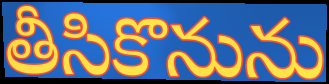
తీసికొనును